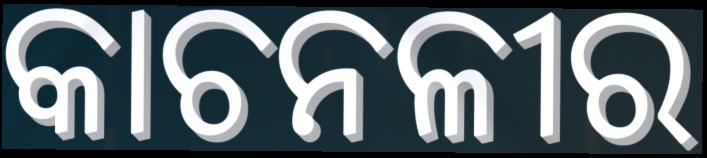
କାଚନଳୀର